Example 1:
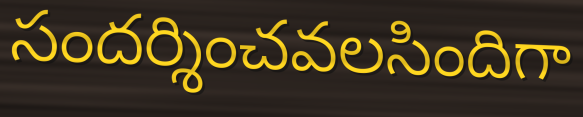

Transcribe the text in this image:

సందర్శించవలసిందిగా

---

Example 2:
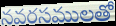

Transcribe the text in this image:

నవరసములతో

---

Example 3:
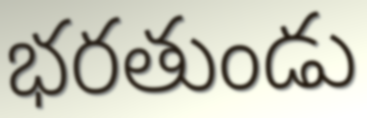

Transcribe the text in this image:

భరతుండు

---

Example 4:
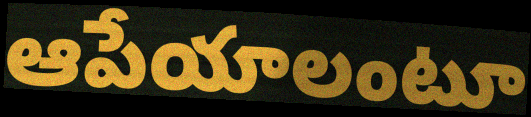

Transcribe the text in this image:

ఆపేయాలంటూ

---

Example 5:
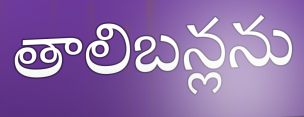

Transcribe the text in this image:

తాలిబన్లను